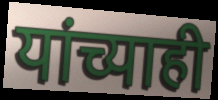
यांच्याही